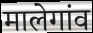
मालेगांव